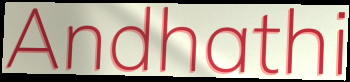
Andhathi